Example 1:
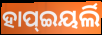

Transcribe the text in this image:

ହାପ୍ଇୟର୍ଲି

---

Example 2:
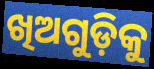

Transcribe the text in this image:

ଖିଅଗୁଡ଼ିକୁ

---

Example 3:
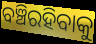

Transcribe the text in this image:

ବଞ୍ଚିରହିବାକୁ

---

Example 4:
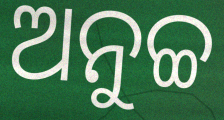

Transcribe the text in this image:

ଅନୁଚ୍ଚ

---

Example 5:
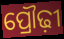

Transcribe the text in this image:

ପ୍ରୌଢ଼ୀ